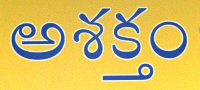
అశక్తం